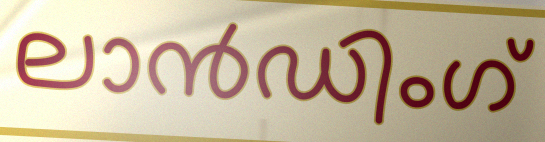
ലാൻഡിംഗ്